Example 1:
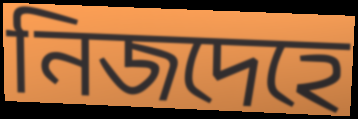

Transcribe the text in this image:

নিজদেহে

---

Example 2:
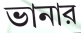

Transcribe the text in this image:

ভানার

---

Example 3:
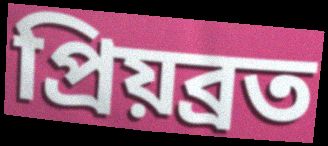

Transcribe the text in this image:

প্রিয়ব্রত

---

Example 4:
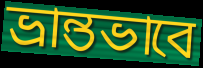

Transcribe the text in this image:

ভ্রান্তভাবে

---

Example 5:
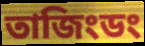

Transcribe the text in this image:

তাজিংডং